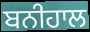
ਬਨੀਹਾਲ